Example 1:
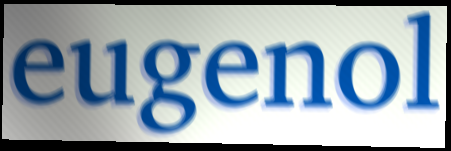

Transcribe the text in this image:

eugenol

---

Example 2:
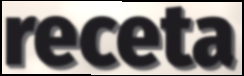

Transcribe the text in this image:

receta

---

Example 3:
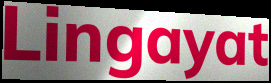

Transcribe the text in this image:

Lingayat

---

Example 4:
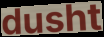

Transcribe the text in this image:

dusht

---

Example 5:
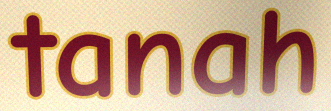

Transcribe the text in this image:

tanah